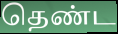
தெண்ட